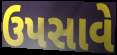
ઉપસાવે